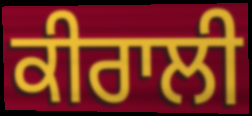
ਕੀਰਾਲੀ